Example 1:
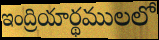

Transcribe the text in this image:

ఇంద్రియార్థములలో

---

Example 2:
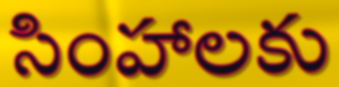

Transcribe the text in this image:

సింహాలకు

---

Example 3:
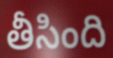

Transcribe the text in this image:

తీసింది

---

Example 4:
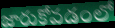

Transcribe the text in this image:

జారుకోవడంలో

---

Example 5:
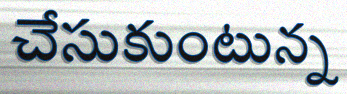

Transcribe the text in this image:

చేసుకుంటున్న